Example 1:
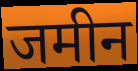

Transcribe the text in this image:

जमीन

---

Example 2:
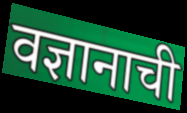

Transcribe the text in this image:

वज्ञानाची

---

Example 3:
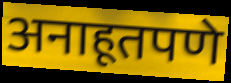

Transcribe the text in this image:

अनाहूतपणे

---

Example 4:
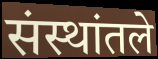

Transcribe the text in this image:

संस्थांतले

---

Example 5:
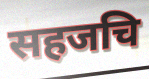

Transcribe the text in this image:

सहजचि